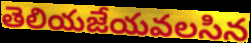
తెలియజేయవలసిన